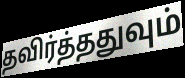
தவிர்த்ததுவும்